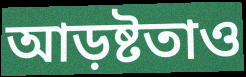
আড়ষ্টতাও